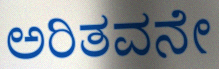
ಅರಿತವನೇ